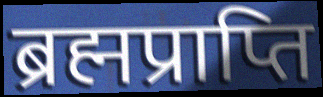
ब्रह्मप्राप्ति